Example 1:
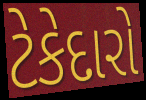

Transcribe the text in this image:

ટેકેદારો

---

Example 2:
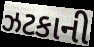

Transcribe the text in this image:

ઝટકાની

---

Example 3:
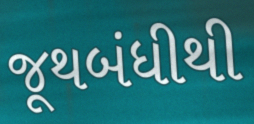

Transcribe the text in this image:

જૂથબંધીથી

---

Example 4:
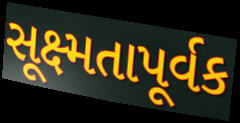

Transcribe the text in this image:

સૂક્ષ્મતાપૂર્વક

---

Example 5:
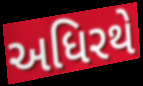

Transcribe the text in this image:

અધિરથે